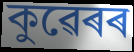
কুৱেৰৰ